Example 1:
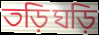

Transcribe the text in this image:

তড়িঘড়ি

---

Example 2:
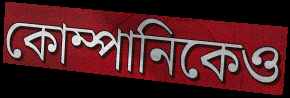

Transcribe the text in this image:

কোম্পানিকেও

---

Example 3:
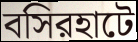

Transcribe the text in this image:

বসিরহাটে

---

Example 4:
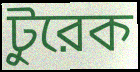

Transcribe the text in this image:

টুরেক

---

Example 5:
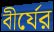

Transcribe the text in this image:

বীর্যের